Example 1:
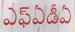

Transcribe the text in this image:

ఎఫ్ఏడీఏ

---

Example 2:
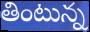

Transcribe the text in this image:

తింటున్న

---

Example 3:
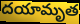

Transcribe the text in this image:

దయామృత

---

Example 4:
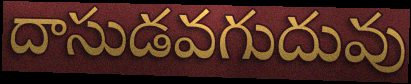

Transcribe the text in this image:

దాసుడవగుదువు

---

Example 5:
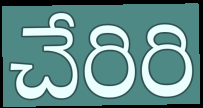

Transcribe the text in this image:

చేరిరి